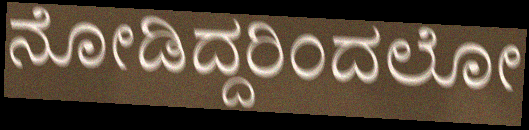
ನೋಡಿದ್ದರಿಂದಲೋ